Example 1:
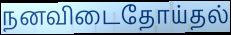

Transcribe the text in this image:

நனவிடைதோய்தல்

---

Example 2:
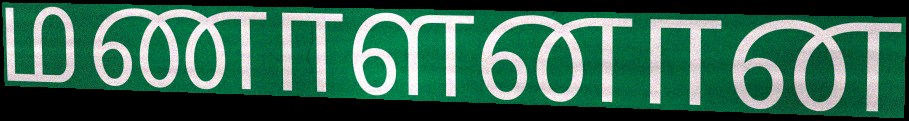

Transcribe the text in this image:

மணாளனான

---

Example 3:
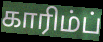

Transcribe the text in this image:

காரிம்ப்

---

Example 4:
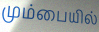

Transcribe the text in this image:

மும்பையில்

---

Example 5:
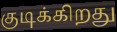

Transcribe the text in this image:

குடிக்கிறது